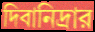
দিবানিদ্রার